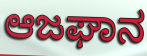
ಆಜಘಾನ